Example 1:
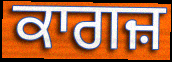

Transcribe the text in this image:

ਕਾਗਜ਼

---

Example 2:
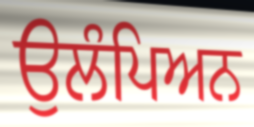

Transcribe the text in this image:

ਉਲੰਪਿਅਨ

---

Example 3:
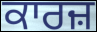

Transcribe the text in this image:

ਕਾਰਜ਼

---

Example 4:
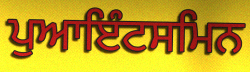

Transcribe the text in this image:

ਪੁਆਇੰਟਸਮਿਨ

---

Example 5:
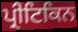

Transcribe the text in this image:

ਪ੍ਰੀਟਿਕਿਨ